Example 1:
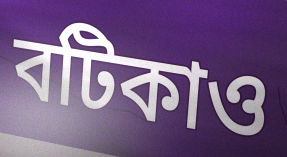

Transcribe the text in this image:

বটিকাও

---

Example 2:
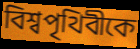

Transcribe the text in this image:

বিশ্বপৃথিবীকে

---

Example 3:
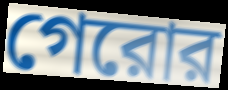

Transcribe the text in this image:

গেরোর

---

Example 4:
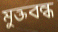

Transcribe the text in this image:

মুক্তবন্ধ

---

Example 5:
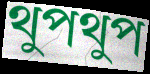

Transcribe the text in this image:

থুপথুপ